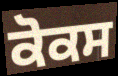
ਕੋਕਸ